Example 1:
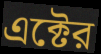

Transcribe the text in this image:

এক্টের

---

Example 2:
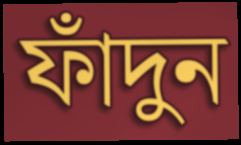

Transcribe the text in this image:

ফাঁদুন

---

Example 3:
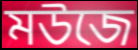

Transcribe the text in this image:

মউজে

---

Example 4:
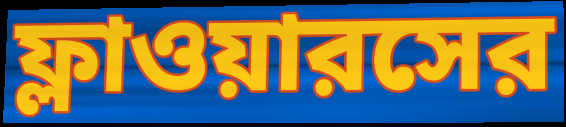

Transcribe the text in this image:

ফ্লাওয়ারসের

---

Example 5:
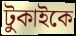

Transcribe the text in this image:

টুকাইকে